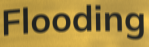
Flooding